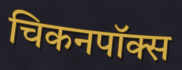
चिकनपॉक्स